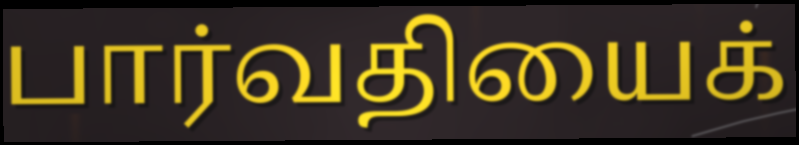
பார்வதியைக்